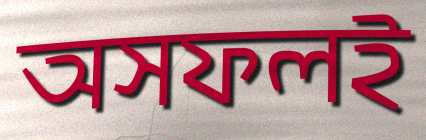
অসফলই